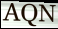
AQN